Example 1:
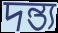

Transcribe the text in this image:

দন্ত্য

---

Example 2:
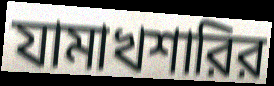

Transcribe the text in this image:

যামাখশারির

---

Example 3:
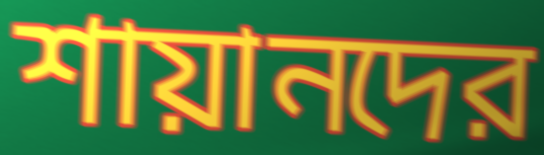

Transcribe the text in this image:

শায়ানদের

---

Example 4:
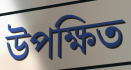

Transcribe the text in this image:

উপক্ষিত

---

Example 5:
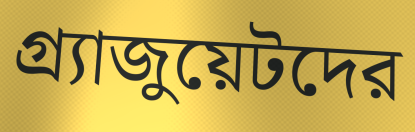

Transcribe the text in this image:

গ্র্যাজুয়েটদের